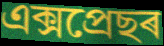
এক্সপ্ৰেছৰ